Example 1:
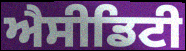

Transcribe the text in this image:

ਐਸੀਡਿਟੀ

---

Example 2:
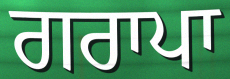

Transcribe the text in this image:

ਗਰਾਪਾ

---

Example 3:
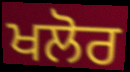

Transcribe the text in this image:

ਖਲੋਰ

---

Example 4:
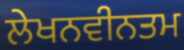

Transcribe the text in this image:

ਲੇਖਨਵੀਨਤਮ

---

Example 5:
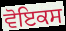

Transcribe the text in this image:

ਵੋਇਕਸ